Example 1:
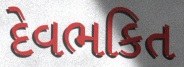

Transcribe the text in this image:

દેવભકિત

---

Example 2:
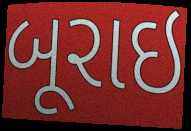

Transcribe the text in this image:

બૂરાઇ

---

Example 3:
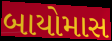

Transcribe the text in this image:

બાયોમાસ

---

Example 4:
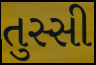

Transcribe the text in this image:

તુસ્સી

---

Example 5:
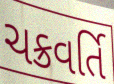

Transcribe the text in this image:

ચક્રવર્તિ